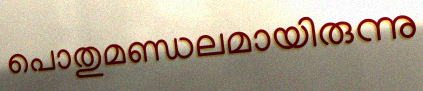
പൊതുമണ്ഡലമായിരുന്നു